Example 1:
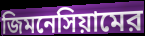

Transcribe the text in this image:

জিমনেসিয়ামের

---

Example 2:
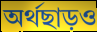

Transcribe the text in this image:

অর্থছাড়ও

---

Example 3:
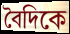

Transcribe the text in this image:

বৈদিকে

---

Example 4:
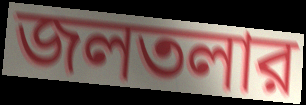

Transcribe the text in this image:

জলতলার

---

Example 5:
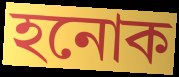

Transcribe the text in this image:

হনোক